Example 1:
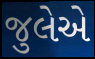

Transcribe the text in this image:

જુલેએ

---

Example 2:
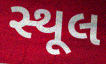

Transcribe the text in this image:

સ્થૂલ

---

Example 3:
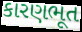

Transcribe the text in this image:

કારણભૂત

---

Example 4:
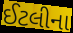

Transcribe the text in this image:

ઈટલીના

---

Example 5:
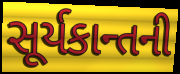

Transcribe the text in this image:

સૂર્યકાન્તની